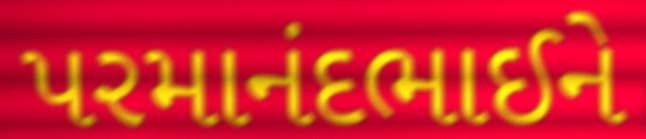
પરમાનંદભાઈને